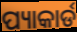
ପ୍ୟାକାର୍ଡ